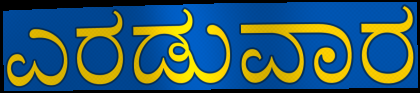
ಎರಡುವಾರ